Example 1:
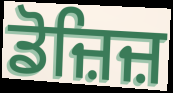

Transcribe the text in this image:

ਡੋਜ਼ਿਜ਼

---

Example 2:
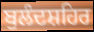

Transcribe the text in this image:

ਬੁਲੰਦਸ਼ਹਿਰ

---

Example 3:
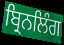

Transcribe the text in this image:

ਬ੍ਰਿਨਲਿੰਗ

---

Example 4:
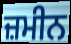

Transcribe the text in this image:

ਜ਼ਮੀਨ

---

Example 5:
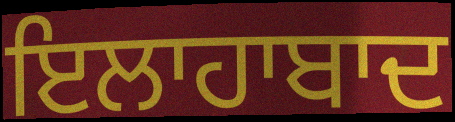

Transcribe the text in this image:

ਇਲਾਹਾਬਾਦ